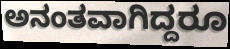
ಅನಂತವಾಗಿದ್ದರೂ